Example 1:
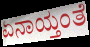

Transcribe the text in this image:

ಏನಾಯ್ತಂತೆ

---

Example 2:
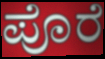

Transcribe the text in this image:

ಪೊರೆ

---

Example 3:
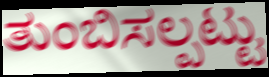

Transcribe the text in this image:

ತುಂಬಿಸಲ್ಪಟ್ಟು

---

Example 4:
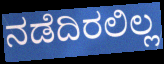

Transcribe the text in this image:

ನಡೆದಿರಲಿಲ್ಲ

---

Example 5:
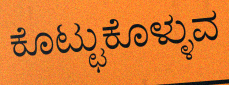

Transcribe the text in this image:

ಕೊಟ್ಟುಕೊಳ್ಳುವ